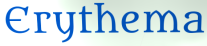
Erythema